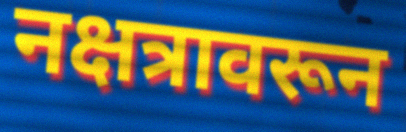
नक्षत्रावरून